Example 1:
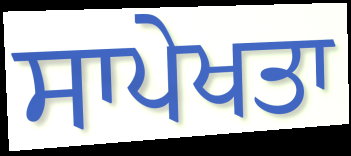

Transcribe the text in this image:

ਸਾਪੇਖਤਾ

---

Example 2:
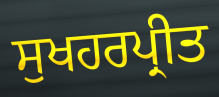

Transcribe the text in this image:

ਸੁਖਹਰਪ੍ਰੀਤ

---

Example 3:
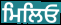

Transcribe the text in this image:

ਮਿਲਿਓ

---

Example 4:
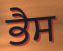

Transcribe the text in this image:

ਭੈਸ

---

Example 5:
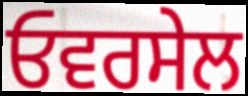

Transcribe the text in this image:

ਓਵਰਸੇਲ